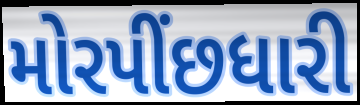
મોરપીંછધારી